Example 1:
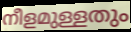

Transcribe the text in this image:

നീളമുള്ളതും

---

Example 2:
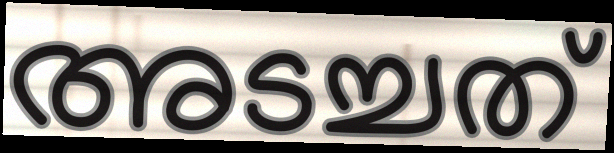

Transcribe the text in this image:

അടച്ചത്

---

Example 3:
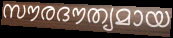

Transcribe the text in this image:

സൗരദൗത്യമായ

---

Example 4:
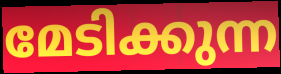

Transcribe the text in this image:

മേടിക്കുന്ന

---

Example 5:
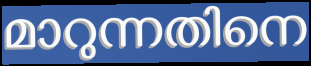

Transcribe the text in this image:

മാറുന്നതിനെ